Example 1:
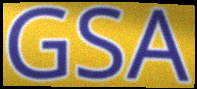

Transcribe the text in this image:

GSA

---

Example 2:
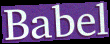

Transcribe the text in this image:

Babel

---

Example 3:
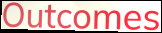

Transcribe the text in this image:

Outcomes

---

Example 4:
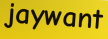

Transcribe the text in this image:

jaywant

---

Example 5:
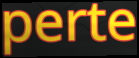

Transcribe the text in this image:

perte